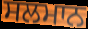
ਸਲਮਾਨ